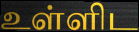
உள்ளிட